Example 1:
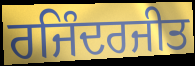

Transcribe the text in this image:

ਰਜਿੰਦਰਜੀਤ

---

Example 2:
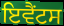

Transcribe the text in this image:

ਇਵੈਂਟਸ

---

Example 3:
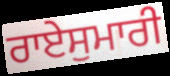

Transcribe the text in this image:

ਰਾਏਸੁਮਾਰੀ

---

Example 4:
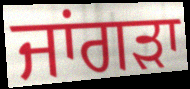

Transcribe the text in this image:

ਜਾਂਗੜਾ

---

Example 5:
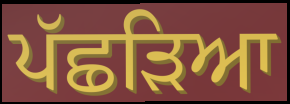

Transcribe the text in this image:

ਪੱਛੜਿਆ